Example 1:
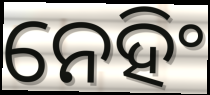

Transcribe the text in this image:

ନେହିଂ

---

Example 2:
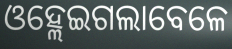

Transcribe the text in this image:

ଓହ୍ଲେଇଗଲାବେଳେ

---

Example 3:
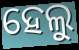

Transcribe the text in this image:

ହେଲୁ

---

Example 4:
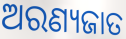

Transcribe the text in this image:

ଅରଣ୍ୟଜାତ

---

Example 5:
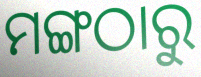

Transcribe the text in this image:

ମଙ୍ଗଠାରୁ